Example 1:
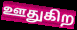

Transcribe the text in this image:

ஊதுகிற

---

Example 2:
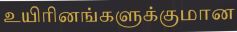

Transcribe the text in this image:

உயிரினங்களுக்குமான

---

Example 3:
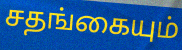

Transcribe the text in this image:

சதங்கையும்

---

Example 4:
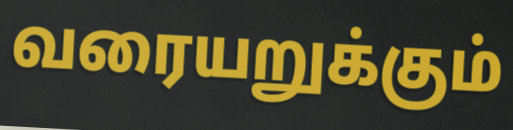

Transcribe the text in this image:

வரையறுக்கும்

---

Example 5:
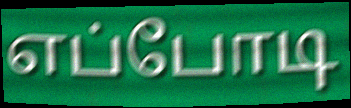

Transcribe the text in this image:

எப்போடி